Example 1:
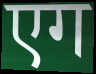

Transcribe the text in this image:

एग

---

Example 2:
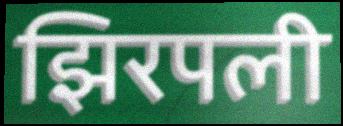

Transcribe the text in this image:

झिरपली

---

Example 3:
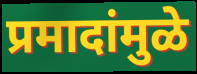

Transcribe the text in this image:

प्रमादांमुळे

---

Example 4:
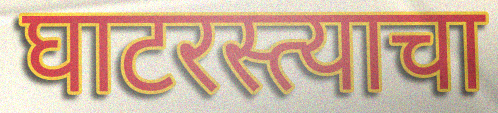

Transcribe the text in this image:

घाटरस्त्याचा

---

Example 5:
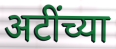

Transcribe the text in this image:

अटींच्या